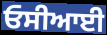
ਓਸੀਆਈ